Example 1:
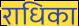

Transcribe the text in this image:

राधिका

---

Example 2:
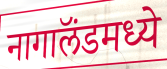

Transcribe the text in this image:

नागालॅंडमध्ये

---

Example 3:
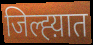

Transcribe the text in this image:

जिल्ह्य़ात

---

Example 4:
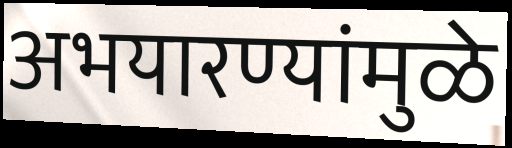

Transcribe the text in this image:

अभयारण्यांमुळे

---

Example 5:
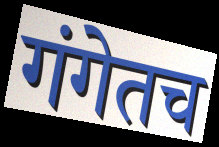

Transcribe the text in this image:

गंगेतच